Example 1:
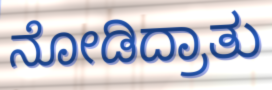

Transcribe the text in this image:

ನೋಡಿದ್ರಾತು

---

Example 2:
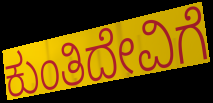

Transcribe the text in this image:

ಕುಂತಿದೇವಿಗೆ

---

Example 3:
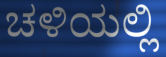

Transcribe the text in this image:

ಚಳಿಯಲ್ಲಿ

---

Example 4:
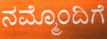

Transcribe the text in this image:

ನಮ್ಮೊಂದಿಗೆ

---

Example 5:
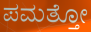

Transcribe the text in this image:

ಪಮತ್ತೋ